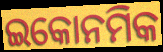
ଇକୋନମିକ